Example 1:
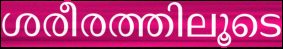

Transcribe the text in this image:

ശരീരത്തിലൂടെ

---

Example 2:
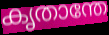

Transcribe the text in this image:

കൃതാന്തേ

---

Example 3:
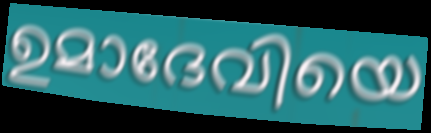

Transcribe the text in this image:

ഉമാദേവിയെ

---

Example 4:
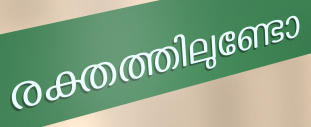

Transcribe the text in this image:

രക്തത്തിലുണ്ടോ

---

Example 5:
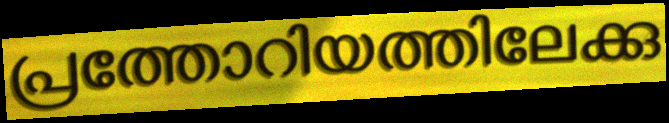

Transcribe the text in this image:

പ്രത്തോറിയത്തിലേക്കു